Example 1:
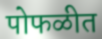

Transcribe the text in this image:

पोफळीत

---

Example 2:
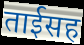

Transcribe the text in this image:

ताईसह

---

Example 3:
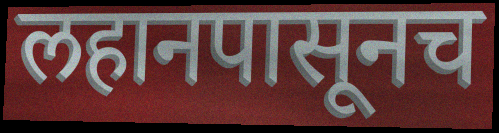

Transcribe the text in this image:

लहानपासूनच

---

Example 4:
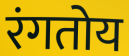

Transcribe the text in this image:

रंगतोय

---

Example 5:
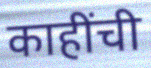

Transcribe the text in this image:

काहींची